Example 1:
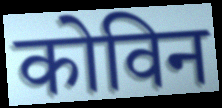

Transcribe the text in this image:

कोविन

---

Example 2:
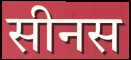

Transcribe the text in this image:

सीनस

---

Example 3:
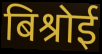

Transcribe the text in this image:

बिश्रोई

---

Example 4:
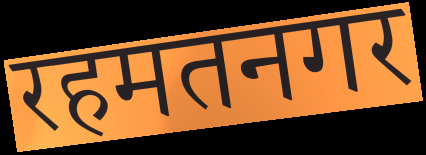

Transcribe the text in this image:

रहमतनगर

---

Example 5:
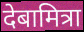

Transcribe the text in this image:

देबामित्रा